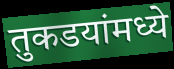
तुकडयांमध्ये